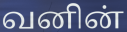
வனின்